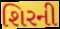
શિરની